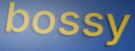
bossy